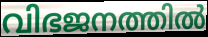
വിഭജനത്തിൽ